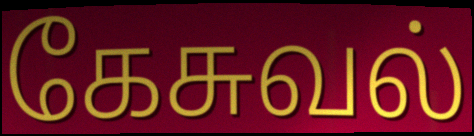
கேசுவல்